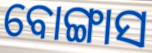
ବୋଙ୍ଗାସ